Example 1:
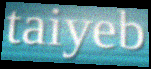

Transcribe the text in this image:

taiyeb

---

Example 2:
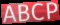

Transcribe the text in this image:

ABCP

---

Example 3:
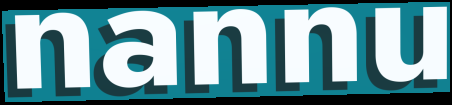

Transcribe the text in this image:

nannu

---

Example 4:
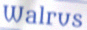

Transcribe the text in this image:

Walrus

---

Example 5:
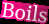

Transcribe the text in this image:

Boils